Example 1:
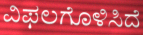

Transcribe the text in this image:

ವಿಫಲಗೊಳಿಸಿದೆ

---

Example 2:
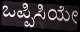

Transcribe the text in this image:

ಒಪ್ಪಿಸಿಯೇ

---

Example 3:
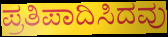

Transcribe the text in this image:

ಪ್ರತಿಪಾದಿಸಿದವು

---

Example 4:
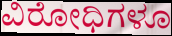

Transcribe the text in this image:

ವಿರೋಧಿಗಳೂ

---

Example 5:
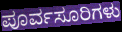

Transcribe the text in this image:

ಪೂರ್ವಸೂರಿಗಳು